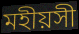
মহীয়সী